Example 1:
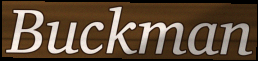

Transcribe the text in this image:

Buckman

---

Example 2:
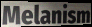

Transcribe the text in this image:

Melanism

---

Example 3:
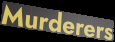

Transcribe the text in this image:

Murderers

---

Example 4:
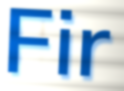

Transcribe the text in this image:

Fir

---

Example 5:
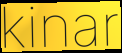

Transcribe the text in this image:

kinar